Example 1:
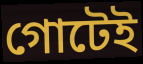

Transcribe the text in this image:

গোটেই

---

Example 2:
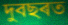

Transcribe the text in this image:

দুবছৰত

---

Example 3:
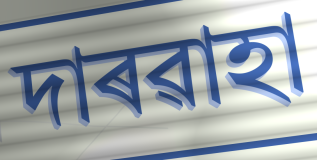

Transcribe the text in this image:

দাৰৱাহা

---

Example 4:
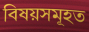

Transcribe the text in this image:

বিষয়সমূহত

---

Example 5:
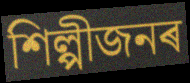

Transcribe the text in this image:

শিল্পীজনৰ